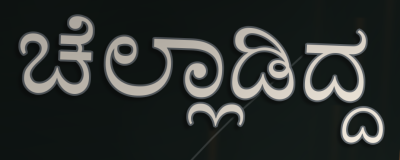
ಚೆಲ್ಲಾಡಿದ್ದ